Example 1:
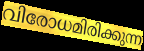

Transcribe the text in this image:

വിരോധമിരിക്കുന്ന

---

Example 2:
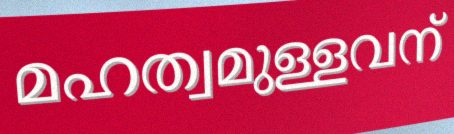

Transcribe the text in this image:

മഹത്വമുള്ളവന്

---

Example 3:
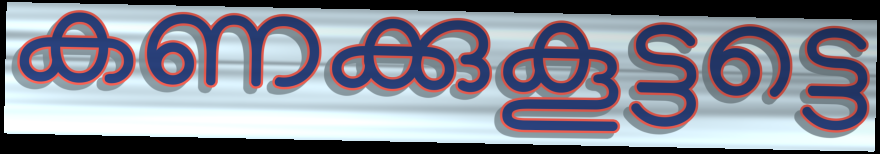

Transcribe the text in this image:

കണക്കുകൂട്ടട്ടെ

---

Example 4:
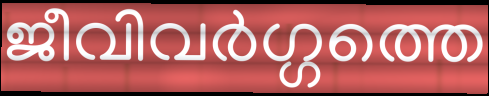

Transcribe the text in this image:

ജീവിവർഗ്ഗത്തെ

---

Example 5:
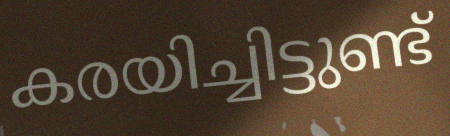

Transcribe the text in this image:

കരയിച്ചിട്ടുണ്ട്